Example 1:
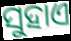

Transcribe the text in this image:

ସୁହାଏ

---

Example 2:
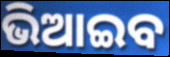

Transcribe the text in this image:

ଭିଆଇବ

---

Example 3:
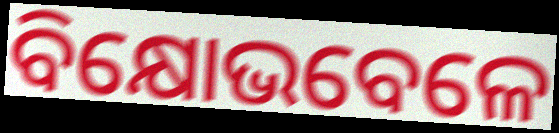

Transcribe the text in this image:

ବିକ୍ଷୋଭବେଳେ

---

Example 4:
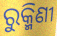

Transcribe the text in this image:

ରୁକ୍ମିଣୀ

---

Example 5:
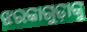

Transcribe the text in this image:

ଝରକାଗୁଡ଼ାକୁ